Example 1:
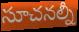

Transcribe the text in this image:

సూచనల్నీ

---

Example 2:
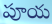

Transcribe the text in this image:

పూయ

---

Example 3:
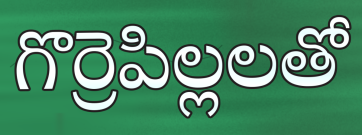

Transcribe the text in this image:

గొర్రెపిల్లలతో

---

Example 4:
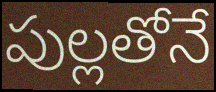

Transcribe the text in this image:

పుల్లతోనే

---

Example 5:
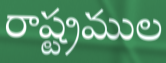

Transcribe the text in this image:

రాష్ట్రముల